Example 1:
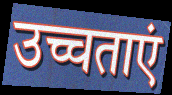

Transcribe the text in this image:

उच्चताएं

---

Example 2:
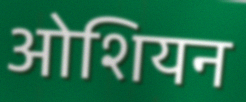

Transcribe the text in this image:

ओशियन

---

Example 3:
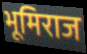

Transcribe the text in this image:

भूमिराज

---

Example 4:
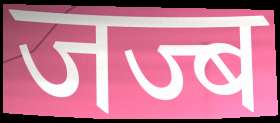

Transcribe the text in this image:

जज्ब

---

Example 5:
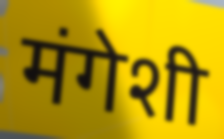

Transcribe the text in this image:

मंगेशी